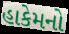
હાકેમનો